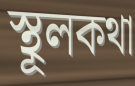
স্থূলকথা